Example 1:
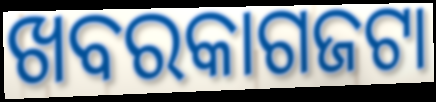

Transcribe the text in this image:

ଖବରକାଗଜଟା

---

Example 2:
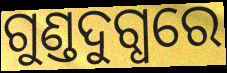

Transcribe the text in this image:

ଗୁଣ୍ଡଦୁଗ୍ଧରେ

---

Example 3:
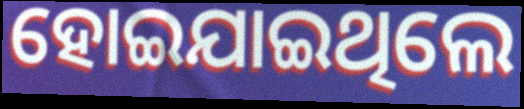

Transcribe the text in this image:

ହୋଇଯାଇଥିଲେ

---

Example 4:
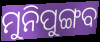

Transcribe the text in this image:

ମୁନିପୁଙ୍ଗବ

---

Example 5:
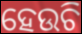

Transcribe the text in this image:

ହେଉଚି